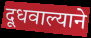
दूधवाल्याने